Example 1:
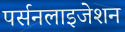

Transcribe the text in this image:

पर्सनलाइजेशन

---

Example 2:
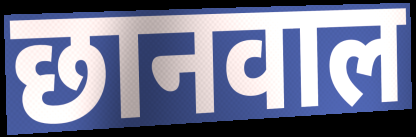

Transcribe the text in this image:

छानवाल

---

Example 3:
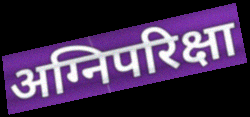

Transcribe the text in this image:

अग्निपरिक्षा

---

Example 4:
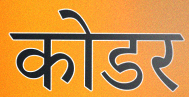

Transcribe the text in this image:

कोडर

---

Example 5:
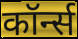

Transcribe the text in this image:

कॉर्न्स